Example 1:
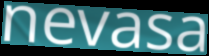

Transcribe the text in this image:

nevasa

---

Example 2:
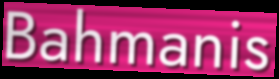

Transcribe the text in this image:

Bahmanis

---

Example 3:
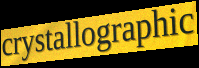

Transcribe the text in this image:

crystallographic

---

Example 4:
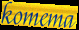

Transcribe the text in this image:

komema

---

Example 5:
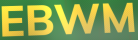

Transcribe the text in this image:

EBWM